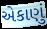
એકાણું